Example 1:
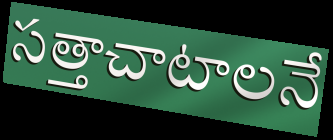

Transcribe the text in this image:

సత్తాచాటాలనే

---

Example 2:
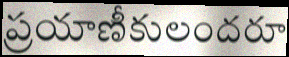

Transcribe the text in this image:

ప్రయాణీకులందరూ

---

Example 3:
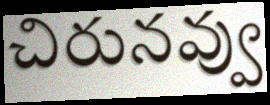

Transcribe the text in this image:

చిరునవ్వు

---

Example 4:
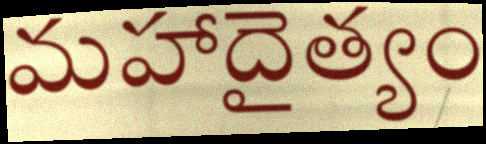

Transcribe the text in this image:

మహాదైత్యం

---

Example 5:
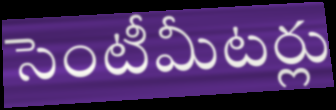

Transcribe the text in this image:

సెంటీమీటర్లు